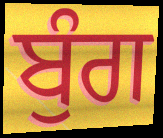
ਬੁੰਗ